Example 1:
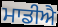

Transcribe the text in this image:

ਮਾਡੀਐ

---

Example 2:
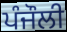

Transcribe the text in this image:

ਪੰਜੌਲੀ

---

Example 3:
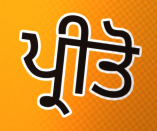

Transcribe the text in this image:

ਪ੍ਰੀਤੋ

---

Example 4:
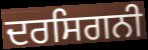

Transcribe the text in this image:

ਦਰਸਿਗਨੀ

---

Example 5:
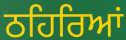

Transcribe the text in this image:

ਠਹਿਰਿਆਂ